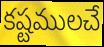
కష్టములచే